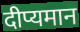
दीप्यमान